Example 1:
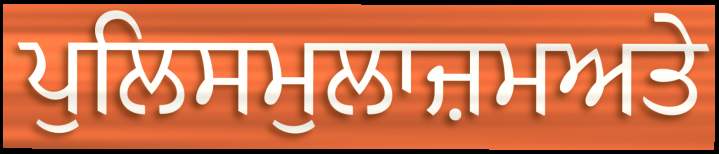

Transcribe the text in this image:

ਪੁਲਿਸਮੁਲਾਜ਼ਮਅਤੇ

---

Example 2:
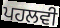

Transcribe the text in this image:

ਪਹਲਵੀ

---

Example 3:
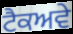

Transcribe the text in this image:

ਟੈਕਅਵੇ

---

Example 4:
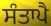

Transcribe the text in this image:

ਸੰਤਾਪੈ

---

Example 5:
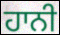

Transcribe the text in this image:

ਹਾਨੀ